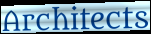
Architects